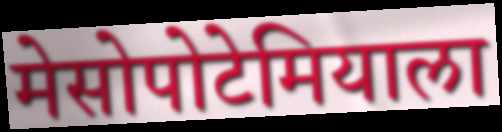
मेसोपोटेमियाला